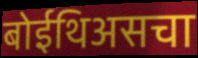
बोईथिअसचा